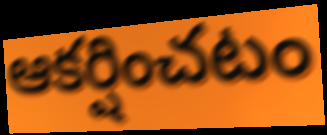
ఆకర్షించటం